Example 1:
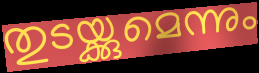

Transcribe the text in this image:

തുടയ്ക്കുമെന്നും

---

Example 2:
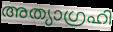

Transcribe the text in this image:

അത്യാഗ്രഹി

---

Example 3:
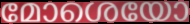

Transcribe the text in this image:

മോശെയോ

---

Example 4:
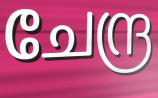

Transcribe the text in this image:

ചേന്ദ്ര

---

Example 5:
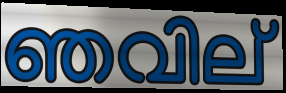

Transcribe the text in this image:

ഞവില്